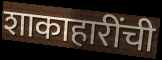
शाकाहारींची